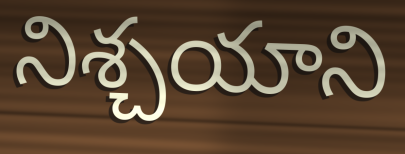
నిశ్చయాని